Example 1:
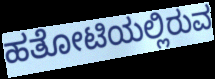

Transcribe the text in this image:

ಹತೋಟಿಯಲ್ಲಿರುವ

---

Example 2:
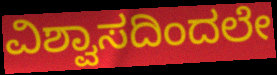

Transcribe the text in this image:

ವಿಶ್ವಾಸದಿಂದಲೇ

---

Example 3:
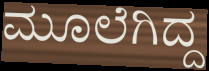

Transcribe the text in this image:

ಮೂಲೆಗಿದ್ದ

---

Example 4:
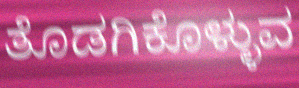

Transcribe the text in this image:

ತೊಡಗಿಕೊಳ್ಳುವ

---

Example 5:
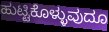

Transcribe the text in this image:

ಹುಟ್ಟಿಕೊಳ್ಳುವುದೂ